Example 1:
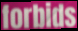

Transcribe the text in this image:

forbids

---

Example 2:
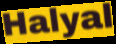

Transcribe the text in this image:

Halyal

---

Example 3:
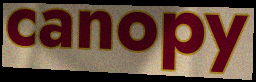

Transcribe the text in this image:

canopy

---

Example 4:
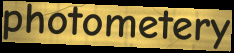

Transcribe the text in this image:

photometery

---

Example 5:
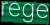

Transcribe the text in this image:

rege